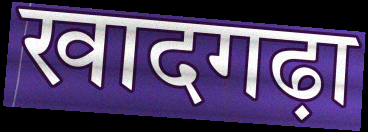
खादगढ़ा